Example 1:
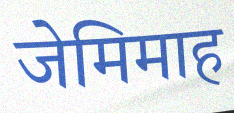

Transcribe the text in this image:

जेमिमाह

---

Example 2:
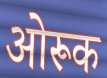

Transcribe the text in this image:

ओरूक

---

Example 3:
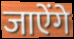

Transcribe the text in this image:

जाऐंगे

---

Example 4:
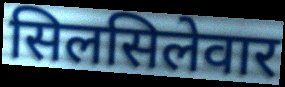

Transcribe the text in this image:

सिलसिलेवार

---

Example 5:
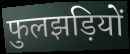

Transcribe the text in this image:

फुलझड़ियों